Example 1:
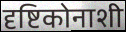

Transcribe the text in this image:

दृष्टिकोनाशी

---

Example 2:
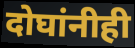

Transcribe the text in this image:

दोघांनीही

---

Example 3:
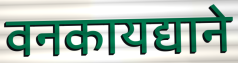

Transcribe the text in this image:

वनकायद्याने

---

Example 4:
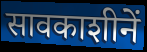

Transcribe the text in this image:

सावकाशीनें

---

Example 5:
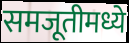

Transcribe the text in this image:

समजूतीमध्ये